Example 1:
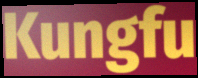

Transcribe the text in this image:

Kungfu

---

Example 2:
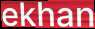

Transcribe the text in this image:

ekhan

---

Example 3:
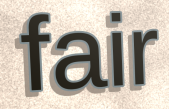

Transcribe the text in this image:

fair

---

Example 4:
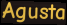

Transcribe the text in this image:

Agusta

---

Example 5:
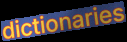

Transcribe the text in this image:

dictionaries